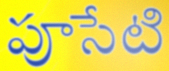
పూసేటి